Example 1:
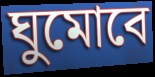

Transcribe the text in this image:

ঘুমোবে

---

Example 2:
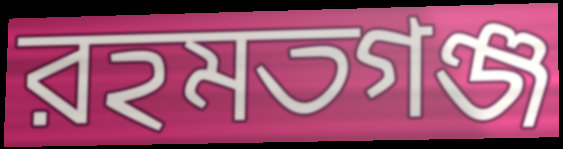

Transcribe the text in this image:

রহমতগঞ্জ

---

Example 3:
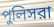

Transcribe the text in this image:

পুলিসরা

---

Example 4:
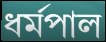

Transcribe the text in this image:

ধর্মপাল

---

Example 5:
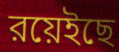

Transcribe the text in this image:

রয়েইছে